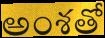
అంశతో